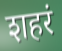
शहरं